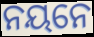
ନୟନେ